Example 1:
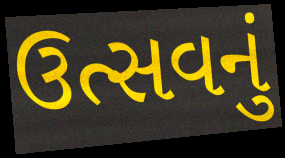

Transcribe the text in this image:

ઉત્સવનું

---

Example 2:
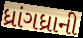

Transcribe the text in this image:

ધ્રાંગધ્રાની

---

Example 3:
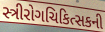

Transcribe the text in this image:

સ્ત્રીરોગચિકિત્સકની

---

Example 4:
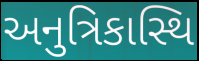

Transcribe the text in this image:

અનુત્રિકાસ્થિ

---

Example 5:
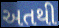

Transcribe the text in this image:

અતથી